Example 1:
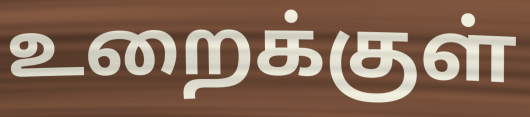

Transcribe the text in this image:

உறைக்குள்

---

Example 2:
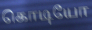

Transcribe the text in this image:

கொடியோ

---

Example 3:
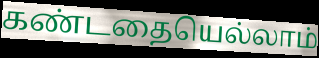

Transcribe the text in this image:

கண்டதையெல்லாம்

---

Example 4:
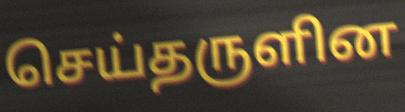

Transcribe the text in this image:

செய்தருளின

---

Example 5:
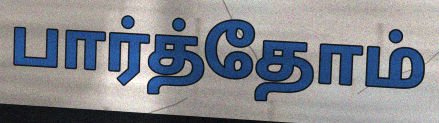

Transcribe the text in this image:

பார்த்தோம்